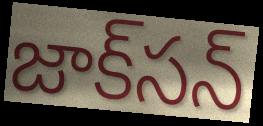
జాక్‌సన్